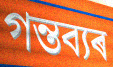
গন্তব্যৰ